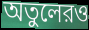
অতুলেরও